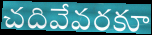
చదివేవరకూ